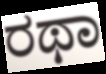
ರಥಾ